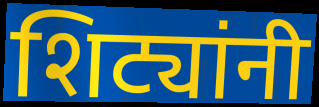
शिट्यांनी